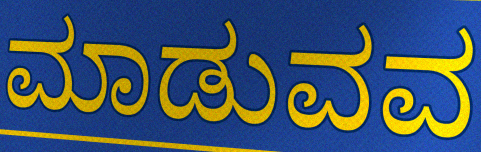
ಮಾಡುವವ